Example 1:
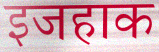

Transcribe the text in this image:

इजहाक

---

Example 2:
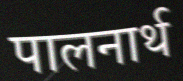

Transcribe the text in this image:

पालनार्थ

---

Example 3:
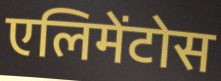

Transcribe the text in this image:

एलिमेंटोस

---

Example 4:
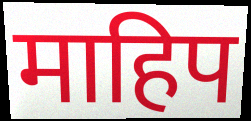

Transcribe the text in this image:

माहिप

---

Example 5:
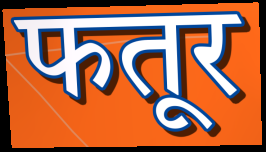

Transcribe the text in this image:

फतूर